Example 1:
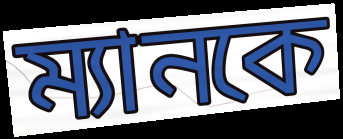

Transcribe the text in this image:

ম্যানকে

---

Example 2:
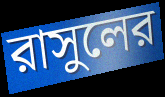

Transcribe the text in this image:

রাসুলের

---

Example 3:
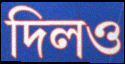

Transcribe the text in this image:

দিলও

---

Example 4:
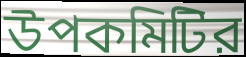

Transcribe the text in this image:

উপকমিটির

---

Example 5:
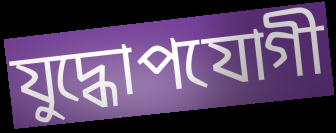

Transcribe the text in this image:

যুদ্ধোপযোগী